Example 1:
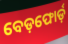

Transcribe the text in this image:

ବେଡ଼ଫୋର୍ଡ଼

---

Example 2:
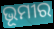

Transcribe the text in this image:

ଭୂମୀର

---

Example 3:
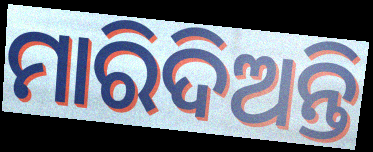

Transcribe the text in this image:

ମାରିଦିଅନ୍ତି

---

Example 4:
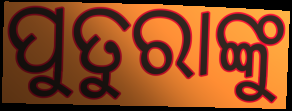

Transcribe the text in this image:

ପୁତୁରାଙ୍କୁ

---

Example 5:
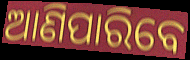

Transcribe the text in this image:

ଆଣିପାରିବେ